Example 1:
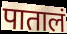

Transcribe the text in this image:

पातालं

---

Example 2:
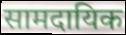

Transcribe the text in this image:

सामदायिक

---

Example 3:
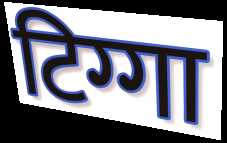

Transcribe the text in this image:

टिग्गा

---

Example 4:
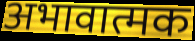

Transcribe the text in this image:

अभावात्मक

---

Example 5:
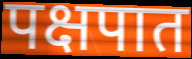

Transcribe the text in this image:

पक्षपात